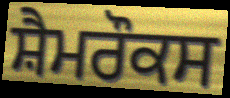
ਸ਼ੈਮਰੌਕਸ